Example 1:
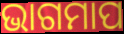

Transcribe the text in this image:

ଭାଗମାପ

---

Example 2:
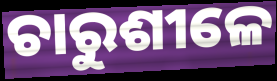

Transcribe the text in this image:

ଚାରୁଶୀଳେ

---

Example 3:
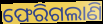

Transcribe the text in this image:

ଫେରିଗଲାଣି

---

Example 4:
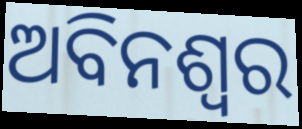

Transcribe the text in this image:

ଅବିନଶ୍ଵର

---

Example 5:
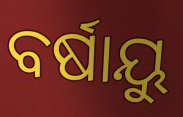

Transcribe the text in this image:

ବର୍ଷାୟୁ